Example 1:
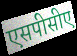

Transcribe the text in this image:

एसपीसीए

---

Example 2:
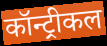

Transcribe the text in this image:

कॉन्ट्रीकल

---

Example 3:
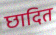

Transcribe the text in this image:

छादित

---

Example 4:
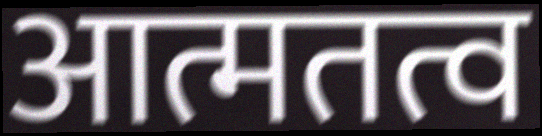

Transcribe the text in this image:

आत्मतत्व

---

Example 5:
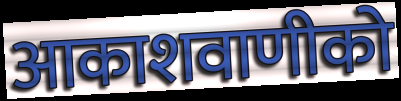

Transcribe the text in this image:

आकाशवाणीको